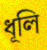
ধূলি